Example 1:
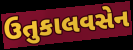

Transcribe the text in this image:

ઉતુકાલવસેન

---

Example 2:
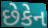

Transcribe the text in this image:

છેકેન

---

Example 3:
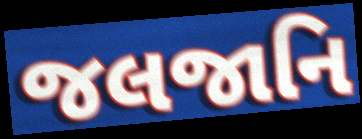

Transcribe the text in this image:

જલજાનિ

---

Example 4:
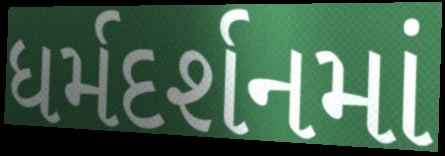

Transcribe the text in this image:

ધર્મદર્શનમાં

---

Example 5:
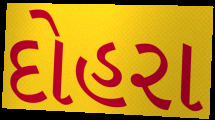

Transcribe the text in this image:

દોહરા